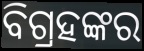
ବିଗ୍ରହଙ୍କର